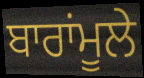
ਬਾਰਾਂਮੂਲੇ